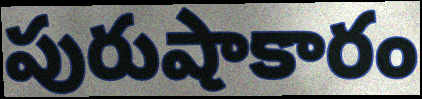
పురుషాకారం